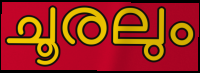
ചൂരലും